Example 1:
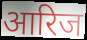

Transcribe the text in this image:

आरिज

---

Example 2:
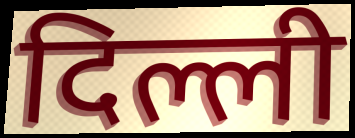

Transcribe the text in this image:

दिल्ली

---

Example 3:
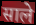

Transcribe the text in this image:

साले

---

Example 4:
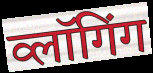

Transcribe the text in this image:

व्लॉगिंग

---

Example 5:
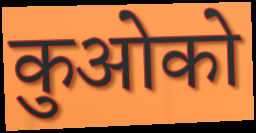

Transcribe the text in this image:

कुओको